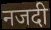
नजदी